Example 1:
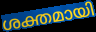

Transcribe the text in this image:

ശക്തമായി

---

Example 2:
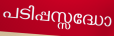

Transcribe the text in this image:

പടിപ്പസ്സദ്ധോ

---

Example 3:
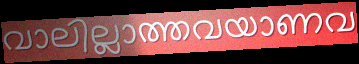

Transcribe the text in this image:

വാലില്ലാത്തവയാണവ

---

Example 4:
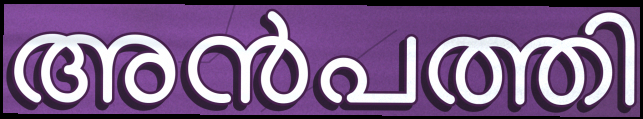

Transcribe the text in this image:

അൻപത്തി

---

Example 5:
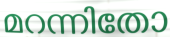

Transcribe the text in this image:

മറന്നിതോ